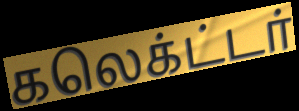
கலெக்ட்டர்